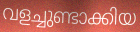
വളച്ചുണ്ടാക്കിയ